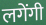
लगेंगी